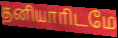
தனியாரிடமே